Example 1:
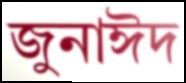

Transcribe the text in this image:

জুনাঈদ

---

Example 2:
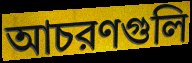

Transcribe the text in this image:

আচরণগুলি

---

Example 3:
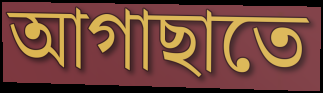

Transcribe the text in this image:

আগাছাতে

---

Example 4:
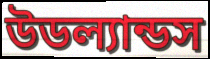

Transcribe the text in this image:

উডল্যান্ডস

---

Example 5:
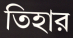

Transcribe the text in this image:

তিহার